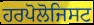
ਹਰਪੋਲੋਜਿਸਟ